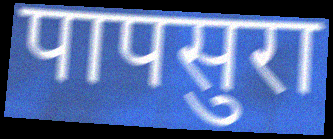
पापसुरा